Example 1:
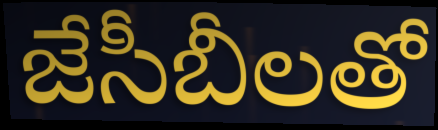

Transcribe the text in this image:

జేసీబీలతో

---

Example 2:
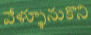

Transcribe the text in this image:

వేళ్ళూనుకొని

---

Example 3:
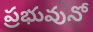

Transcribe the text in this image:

ప్రభువునో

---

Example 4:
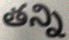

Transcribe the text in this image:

తన్ని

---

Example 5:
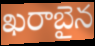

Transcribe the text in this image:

ఖరాబైన